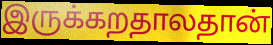
இருக்கறதாலதான்